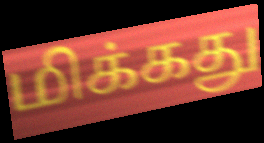
மிக்கது